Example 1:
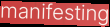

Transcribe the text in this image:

manifesting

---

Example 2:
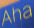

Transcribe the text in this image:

Aha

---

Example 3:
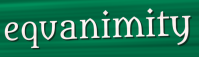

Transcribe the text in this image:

equanimity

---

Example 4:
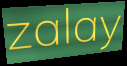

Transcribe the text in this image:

zalay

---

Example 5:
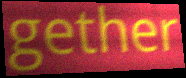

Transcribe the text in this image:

gether